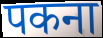
पकना